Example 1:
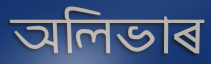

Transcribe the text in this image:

অলিভাৰ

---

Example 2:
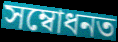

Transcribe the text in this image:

সম্বোধনত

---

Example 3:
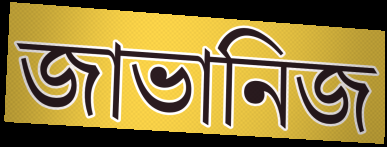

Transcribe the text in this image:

জাভানিজ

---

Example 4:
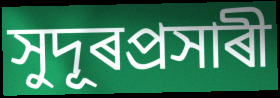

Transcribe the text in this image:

সুদূৰপ্ৰসাৰী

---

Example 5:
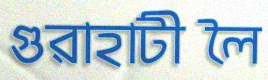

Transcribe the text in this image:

গুৱাহাটীলৈ